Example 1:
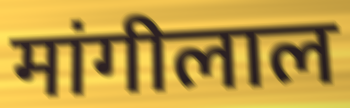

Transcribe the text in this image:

मांगीलाल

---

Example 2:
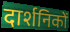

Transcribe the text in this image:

दार्शनिकों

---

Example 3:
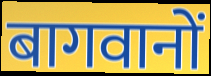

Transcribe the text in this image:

बागवानों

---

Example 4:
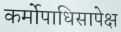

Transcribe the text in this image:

कर्मोपाधिसापेक्ष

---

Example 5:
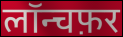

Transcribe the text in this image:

लॉन्चफ़र